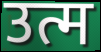
उत्म